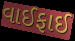
વાઈફાઈ